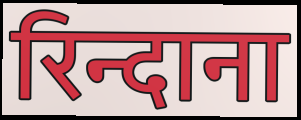
रिन्दाना